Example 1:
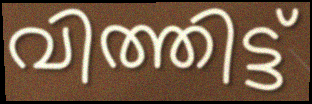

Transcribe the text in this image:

വിത്തിട്ട്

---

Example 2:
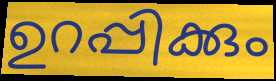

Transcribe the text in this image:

ഉറപ്പിക്കും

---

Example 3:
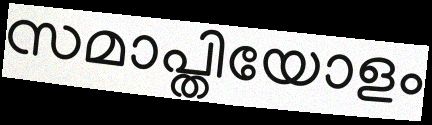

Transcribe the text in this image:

സമാപ്തിയോളം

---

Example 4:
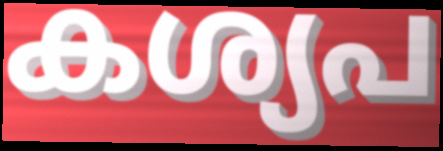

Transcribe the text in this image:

കശ്യപ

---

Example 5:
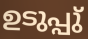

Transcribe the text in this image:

ഉടുപ്പു്